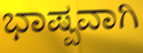
ಭಾಷ್ಪವಾಗಿ